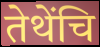
तेथेंचि